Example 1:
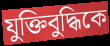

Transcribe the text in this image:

যুক্তিবুদ্ধিকে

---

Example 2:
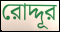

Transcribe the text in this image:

রোদ্দূর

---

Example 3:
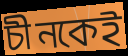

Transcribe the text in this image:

চীনকেই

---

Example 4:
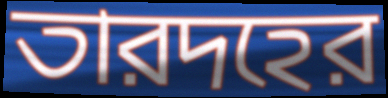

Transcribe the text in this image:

তারদহের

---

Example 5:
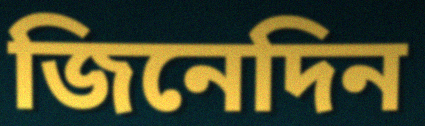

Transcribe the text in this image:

জিনেদিন